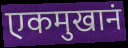
एकमुखानं